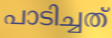
പാടിച്ചത്